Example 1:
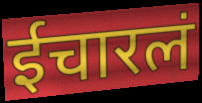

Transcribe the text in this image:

ईचारलं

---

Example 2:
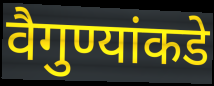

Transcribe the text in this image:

वैगुण्यांकडे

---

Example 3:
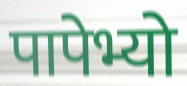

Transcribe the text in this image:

पापेभ्यो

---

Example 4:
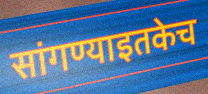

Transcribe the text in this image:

सांगण्याइतकेच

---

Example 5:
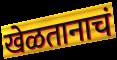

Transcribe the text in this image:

खेळतानाचं